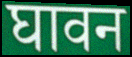
घावन